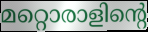
മറ്റൊരാളിന്റെ